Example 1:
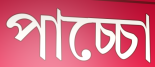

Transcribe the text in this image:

পাচ্চো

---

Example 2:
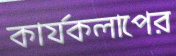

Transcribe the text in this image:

কার্যকলাপের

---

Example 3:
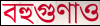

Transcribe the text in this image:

বহুগুণাও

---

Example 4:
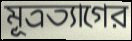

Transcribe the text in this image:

মূত্রত্যাগের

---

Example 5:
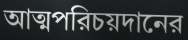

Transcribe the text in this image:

আত্মপরিচয়দানের